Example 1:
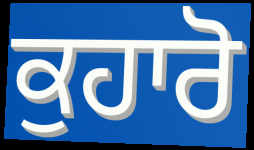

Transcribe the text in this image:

ਕੁਹਾਰੋ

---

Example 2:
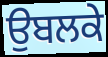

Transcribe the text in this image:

ਉਬਲਕੇ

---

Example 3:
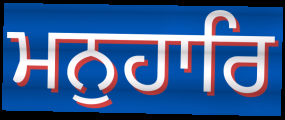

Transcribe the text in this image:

ਮਨੁਹਾਰਿ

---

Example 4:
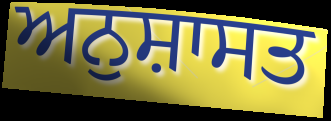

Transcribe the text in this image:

ਅਨੁਸ਼ਾਸਤ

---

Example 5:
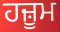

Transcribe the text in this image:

ਹਜ਼ੂਮ